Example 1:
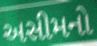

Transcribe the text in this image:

અસીમનો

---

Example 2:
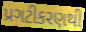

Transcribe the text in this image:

પ્રગટીકરણથી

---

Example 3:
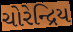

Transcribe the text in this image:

ચોરેન્દ્રિય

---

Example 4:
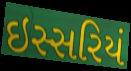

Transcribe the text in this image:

ઇસ્સરિયં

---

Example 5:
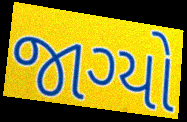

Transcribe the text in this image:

જાગ્યો